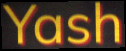
Yash